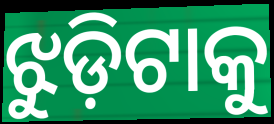
ଝୁଡ଼ିଟାକୁ